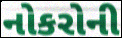
નોકરોની